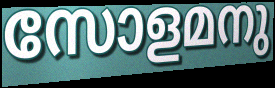
സോളമനു